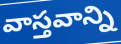
వాస్తవాన్ని